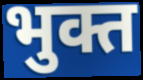
भुक्त